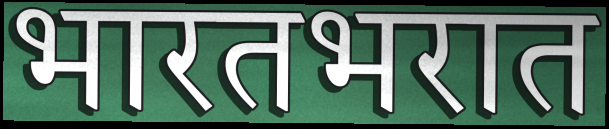
भारतभरात